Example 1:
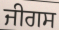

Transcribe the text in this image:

ਜੀਗਸ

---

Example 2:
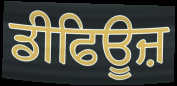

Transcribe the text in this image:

ਡੀਫਿਊਜ਼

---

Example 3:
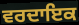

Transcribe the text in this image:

ਵਰਦਾਇਕ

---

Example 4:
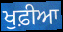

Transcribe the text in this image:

ਖੁਫ਼ੀਆ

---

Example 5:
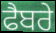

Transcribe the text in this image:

ਫੈਬਰੇ